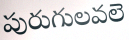
పురుగులవలె